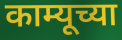
काम्यूच्या